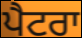
ਪੈਟਰਾ